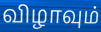
விழாவும்